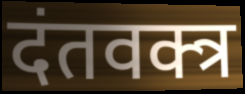
दंतवक्त्र